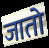
जातो